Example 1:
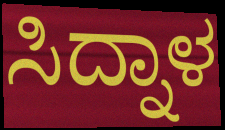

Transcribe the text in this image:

ಸಿದ್ನಾಳ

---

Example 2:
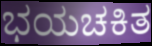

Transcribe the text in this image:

ಭಯಚಕಿತ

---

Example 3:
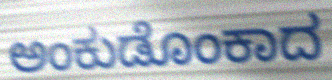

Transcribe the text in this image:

ಅಂಕುಡೊಂಕಾದ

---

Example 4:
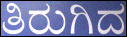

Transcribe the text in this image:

ತಿರುಗಿದ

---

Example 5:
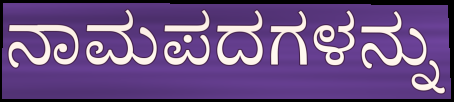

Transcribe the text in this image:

ನಾಮಪದಗಳನ್ನು